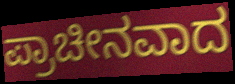
ಪ್ರಾಚೀನವಾದ